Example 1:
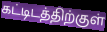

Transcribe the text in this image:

கட்டிடத்திற்குள்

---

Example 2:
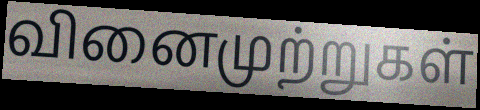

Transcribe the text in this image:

வினைமுற்றுகள்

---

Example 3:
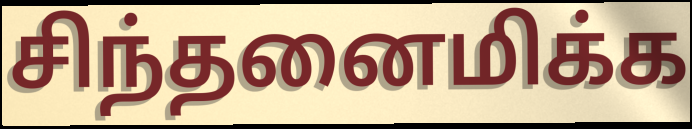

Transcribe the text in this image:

சிந்தனைமிக்க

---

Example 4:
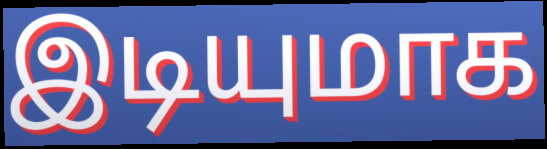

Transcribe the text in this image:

இடியுமாக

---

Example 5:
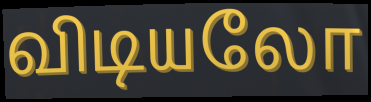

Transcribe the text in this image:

விடியலோ